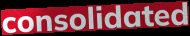
consolidated